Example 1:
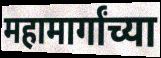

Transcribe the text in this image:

महामार्गांच्या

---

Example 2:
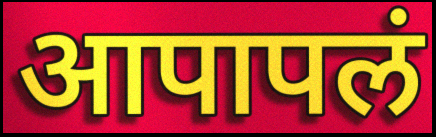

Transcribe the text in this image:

आपापलं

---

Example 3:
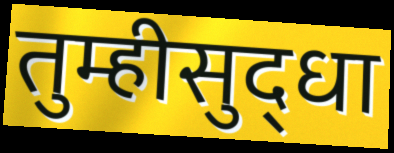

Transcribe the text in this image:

तुम्हीसुद्धा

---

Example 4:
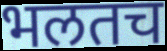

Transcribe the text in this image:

भलतच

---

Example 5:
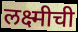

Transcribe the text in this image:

लक्ष्मीची